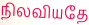
நிலவியதே